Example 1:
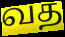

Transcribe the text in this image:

வத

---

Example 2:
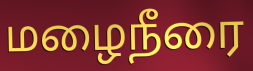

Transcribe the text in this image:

மழைநீரை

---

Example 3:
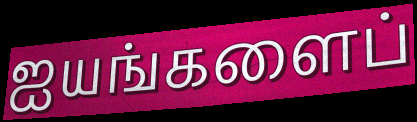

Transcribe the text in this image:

ஐயங்களைப்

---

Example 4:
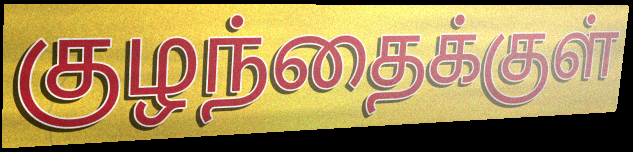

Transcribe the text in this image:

குழந்தைக்குள்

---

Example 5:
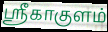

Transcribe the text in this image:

ஸ்ரீகாகுளம்